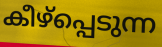
കീഴ്പ്പെടുന്ന